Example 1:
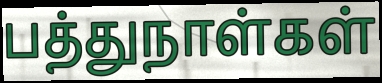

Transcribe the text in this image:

பத்துநாள்கள்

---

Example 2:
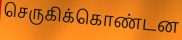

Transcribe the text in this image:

செருகிக்கொண்டன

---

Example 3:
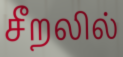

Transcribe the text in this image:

சீறலில்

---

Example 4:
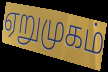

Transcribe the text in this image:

ஏறுமுகம்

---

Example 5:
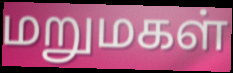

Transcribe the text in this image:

மறுமகள்